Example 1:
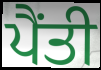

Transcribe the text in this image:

ਪੈਂਤੀ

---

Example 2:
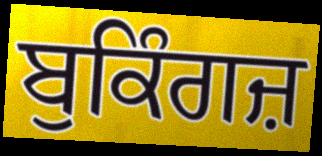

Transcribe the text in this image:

ਬੁਕਿੰਗਜ਼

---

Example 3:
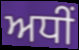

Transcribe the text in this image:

ਅਧੀਂ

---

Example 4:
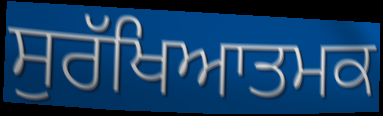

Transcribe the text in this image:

ਸੁਰੱਖਿਆਤਮਕ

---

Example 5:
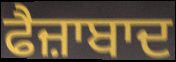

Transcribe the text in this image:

ਫੈਜ਼ਾਬਾਦ